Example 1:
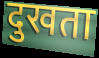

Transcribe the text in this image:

दुखता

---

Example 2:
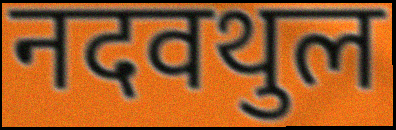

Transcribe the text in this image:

नदवथुल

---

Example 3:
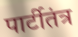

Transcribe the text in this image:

पार्टीतंत्र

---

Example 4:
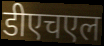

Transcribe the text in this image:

डीएचएल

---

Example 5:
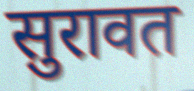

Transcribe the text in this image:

सुरावत